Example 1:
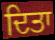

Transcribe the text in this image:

ਦਿਤਾ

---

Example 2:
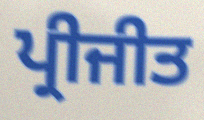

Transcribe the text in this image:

ਪ੍ਰੀਜੀਤ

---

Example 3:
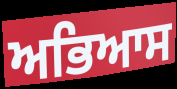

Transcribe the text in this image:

ਅਭਿਆਸ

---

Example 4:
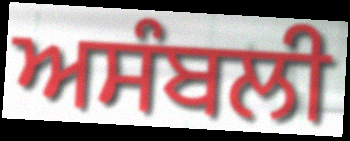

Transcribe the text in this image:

ਅਸੰਬਲੀ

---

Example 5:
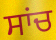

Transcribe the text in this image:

ਸਾਂਚ